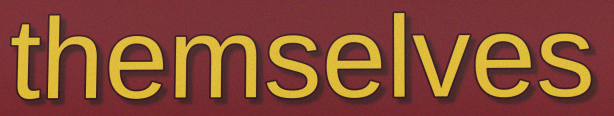
themselves